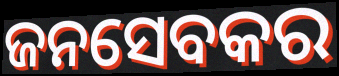
ଜନସେବକର